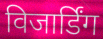
विजार्डिंग